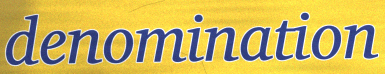
denomination